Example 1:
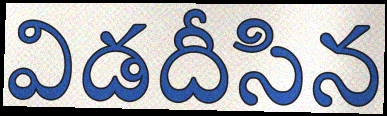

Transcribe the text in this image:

విడదీసిన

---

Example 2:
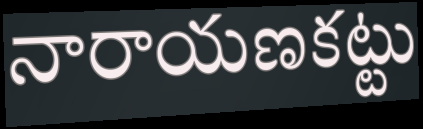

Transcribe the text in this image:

నారాయణకట్టు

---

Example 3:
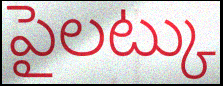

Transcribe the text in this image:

పైలట్కు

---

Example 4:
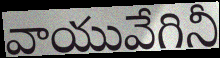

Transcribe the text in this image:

వాయువేగినీ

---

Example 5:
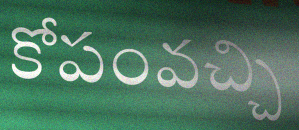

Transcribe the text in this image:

కోపంవచ్చి